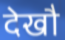
देखौ